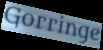
Gorringe